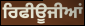
ਰਿਫੀਊਜੀਆਂ